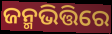
ଜନ୍ମଭିତ୍ତିରେ